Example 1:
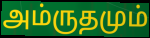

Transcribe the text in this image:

அம்ருதமும்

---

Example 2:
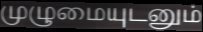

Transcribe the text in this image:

முழுமையுடனும்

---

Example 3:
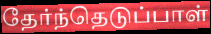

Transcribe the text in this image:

தேர்ந்தெடுப்பாள்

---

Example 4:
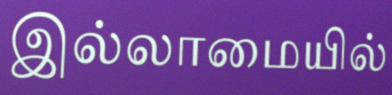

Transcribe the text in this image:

இல்லாமையில்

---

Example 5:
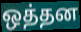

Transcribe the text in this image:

ஒத்தன